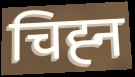
चिह्‍न